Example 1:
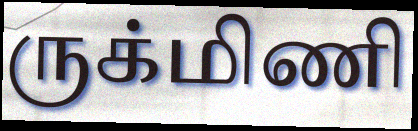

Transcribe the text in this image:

ருக்மிணி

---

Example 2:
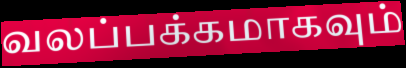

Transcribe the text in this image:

வலப்பக்கமாகவும்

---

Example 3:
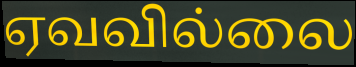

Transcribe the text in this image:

ஏவவில்லை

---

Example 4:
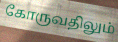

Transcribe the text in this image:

கோருவதிலும்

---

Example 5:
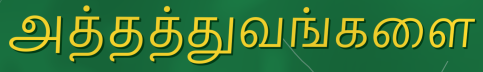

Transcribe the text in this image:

அத்தத்துவங்களை